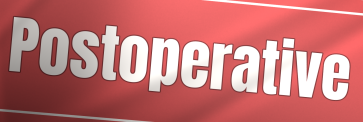
Postoperative